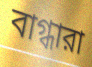
বাগ্ধারা